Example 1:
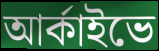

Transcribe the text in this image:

আর্কাইভে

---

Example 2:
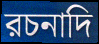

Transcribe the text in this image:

রচনাদি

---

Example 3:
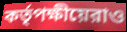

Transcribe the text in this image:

কর্তৃপক্ষীয়েরাও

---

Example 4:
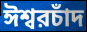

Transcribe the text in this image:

ঈশ্বরচাঁদ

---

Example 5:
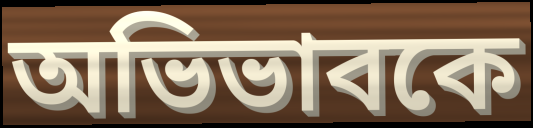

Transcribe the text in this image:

অভিভাবকে